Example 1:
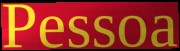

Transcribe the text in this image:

Pessoa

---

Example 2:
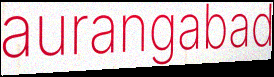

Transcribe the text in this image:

aurangabad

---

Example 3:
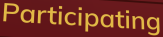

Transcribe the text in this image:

Participating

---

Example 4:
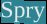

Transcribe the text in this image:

Spry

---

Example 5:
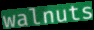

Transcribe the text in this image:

walnuts